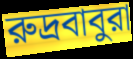
রুদ্রবাবুরা